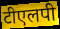
टीएलपी